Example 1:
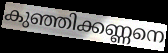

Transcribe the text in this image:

കുഞ്ഞിക്കണ്ണനെ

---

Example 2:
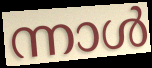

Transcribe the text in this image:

ന്നാൾ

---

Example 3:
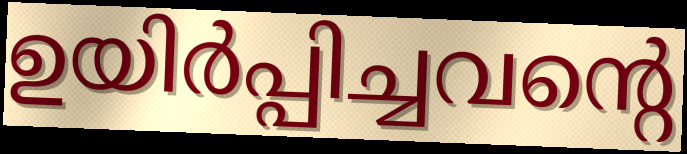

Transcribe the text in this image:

ഉയിർപ്പിച്ചവന്റെ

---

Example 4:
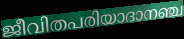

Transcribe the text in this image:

ജീവിതപരിയാദാനഞ്ച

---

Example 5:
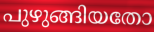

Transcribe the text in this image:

പുഴുങ്ങിയതോ